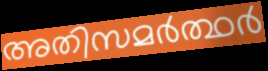
അതിസമർത്ഥർ